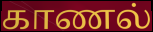
காணல்